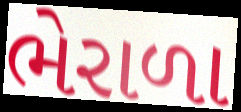
ભેરાળા